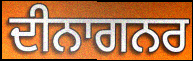
ਦੀਨਾਗਨਰ